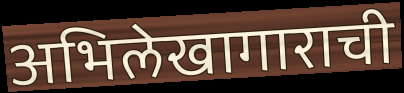
अभिलेखागाराची